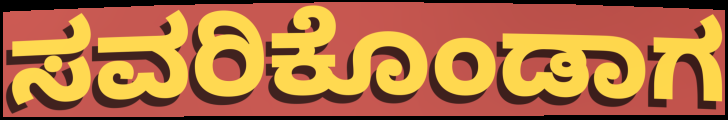
ಸವರಿಕೊಂಡಾಗ